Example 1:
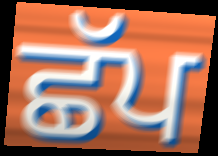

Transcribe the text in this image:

ਛੱਪ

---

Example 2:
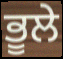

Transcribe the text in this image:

ਭੂਲੇ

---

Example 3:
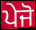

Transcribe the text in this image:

ਪੇਜੋ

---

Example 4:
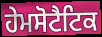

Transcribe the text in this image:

ਹੇਮਸੋਟੈਟਿਕ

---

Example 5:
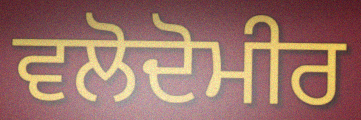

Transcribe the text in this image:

ਵਲੋਦੋਮੀਰ